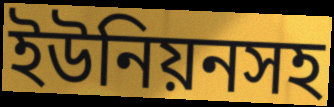
ইউনিয়নসহ